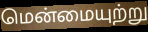
மென்மையுற்று